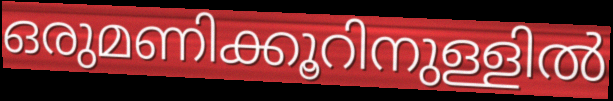
ഒരുമണിക്കൂറിനുള്ളിൽ